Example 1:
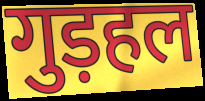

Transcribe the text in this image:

गुड़हल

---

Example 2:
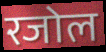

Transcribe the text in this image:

रजोल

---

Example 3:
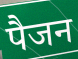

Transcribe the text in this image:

पैजन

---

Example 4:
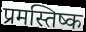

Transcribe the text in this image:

प्रमस्तिष्क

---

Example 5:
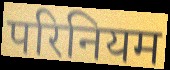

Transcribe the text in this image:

परिनियम